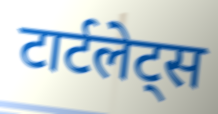
टार्टलेट्स